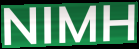
NIMH